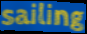
sailing